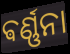
ଵର୍ଣ୍ଣନା